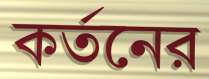
কর্তনের